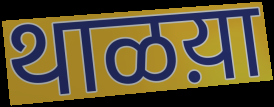
थाळय़ा